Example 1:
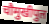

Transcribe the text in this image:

चौमुखीपुल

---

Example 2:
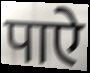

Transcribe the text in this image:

पाऐ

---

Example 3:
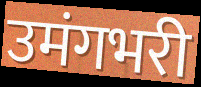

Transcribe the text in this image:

उमंगभरी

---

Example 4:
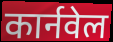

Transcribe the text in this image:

कार्नवेल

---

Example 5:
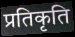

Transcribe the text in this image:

प्रतिकृति